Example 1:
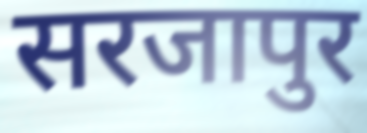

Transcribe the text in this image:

सरजापुर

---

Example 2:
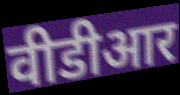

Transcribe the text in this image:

वीडीआर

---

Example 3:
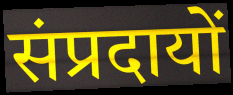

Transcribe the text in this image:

संप्रदायों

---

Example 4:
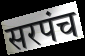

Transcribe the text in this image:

सरपंच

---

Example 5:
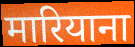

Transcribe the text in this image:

मारियाना